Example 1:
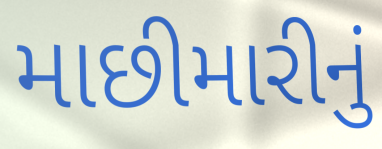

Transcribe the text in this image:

માછીમારીનું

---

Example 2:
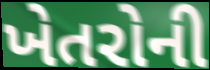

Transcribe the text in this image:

ખેતરોની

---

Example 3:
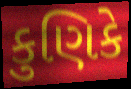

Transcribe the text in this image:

કુણિકે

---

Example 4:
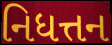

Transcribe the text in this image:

નિધત્તન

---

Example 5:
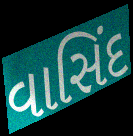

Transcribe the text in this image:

વાસિંદ